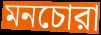
মনচোরা